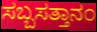
ಸಬ್ಬಸತ್ತಾನಂ